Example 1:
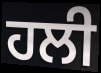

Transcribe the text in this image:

ਹਲੀ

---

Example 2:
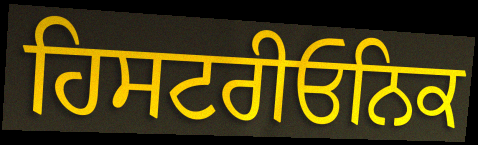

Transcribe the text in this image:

ਹਿਸਟਰੀਓਨਿਕ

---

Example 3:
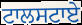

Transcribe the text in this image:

ਟਾਲਸਟਾਏ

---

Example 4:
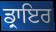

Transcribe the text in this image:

ਡ੍ਰਾਇਰ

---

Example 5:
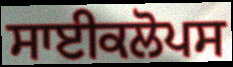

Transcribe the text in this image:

ਸਾਈਕਲੋਪਸ